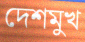
দেশমুখ